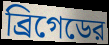
ব্রিগেডের